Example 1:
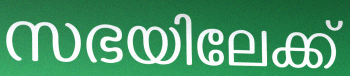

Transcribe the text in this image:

സഭയിലേക്ക്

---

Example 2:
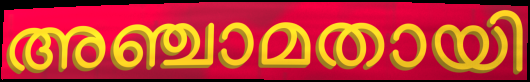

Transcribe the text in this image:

അഞ്ചാമതായി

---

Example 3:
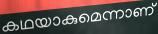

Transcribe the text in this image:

കഥയാകുമെന്നാണ്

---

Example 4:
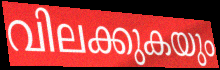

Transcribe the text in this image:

വിലക്കുകയും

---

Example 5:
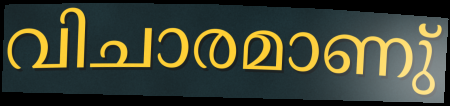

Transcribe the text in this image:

വിചാരമാണു്